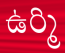
ఉర్మి